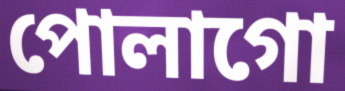
পোলাগো